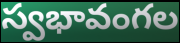
స్వభావంగల